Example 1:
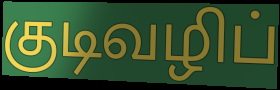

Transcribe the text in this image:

குடிவழிப்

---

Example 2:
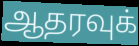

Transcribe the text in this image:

ஆதரவுக்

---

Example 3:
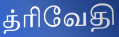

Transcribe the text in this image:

த்ரிவேதி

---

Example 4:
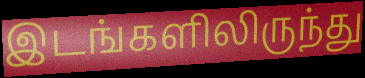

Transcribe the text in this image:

இடங்களிலிருந்து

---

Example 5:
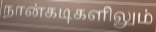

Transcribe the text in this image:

நான்கடிகளிலும்